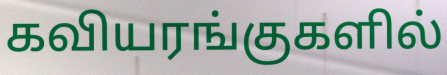
கவியரங்குகளில்